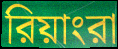
রিয়াংরা